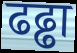
ढढ्ढा